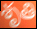
శృతి